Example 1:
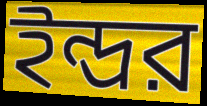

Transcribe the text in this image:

ইন্দ্রর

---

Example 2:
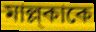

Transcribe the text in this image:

মাল্ল্কাকে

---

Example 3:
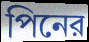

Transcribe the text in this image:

পিনের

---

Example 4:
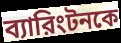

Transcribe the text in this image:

ব্যারিংটনকে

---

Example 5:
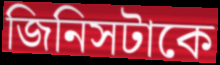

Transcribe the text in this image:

জিনিসটাকে